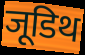
जूडिथ